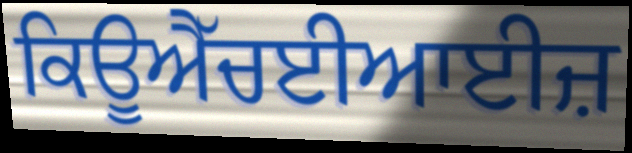
ਕਿਊਐੱਚਈਆਈਜ਼